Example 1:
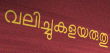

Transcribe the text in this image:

വലിച്ചുകളയരുതു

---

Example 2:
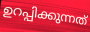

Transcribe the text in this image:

ഉറപ്പിക്കുന്നത്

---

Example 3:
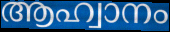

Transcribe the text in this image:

ആഹ്വാനം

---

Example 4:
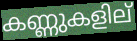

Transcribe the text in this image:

കണ്ണുകളില്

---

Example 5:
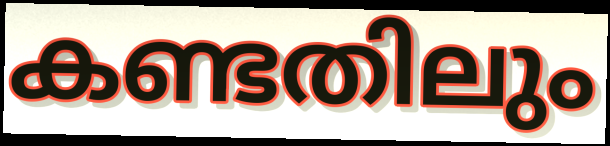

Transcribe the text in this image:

കണ്ടതിലും